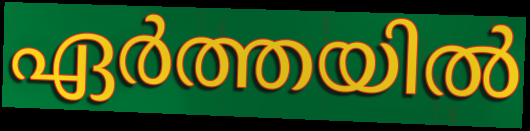
ഏർത്തയിൽ